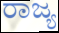
ರಾಜ್ಯ